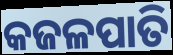
କଜଳପାତି